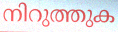
നിറുത്തുക